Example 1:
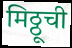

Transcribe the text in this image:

मिठ्ठूची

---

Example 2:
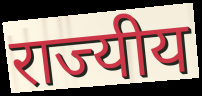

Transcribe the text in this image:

राज्यीय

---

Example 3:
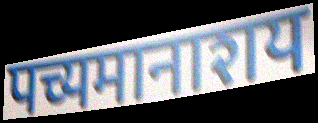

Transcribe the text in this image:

पच्यमानाशय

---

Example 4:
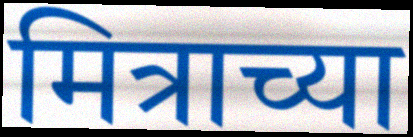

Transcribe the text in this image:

मित्राच्या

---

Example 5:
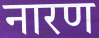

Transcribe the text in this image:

नारण